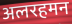
अलरहमन